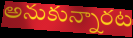
అనుకున్నారట